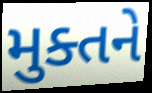
મુક્તને